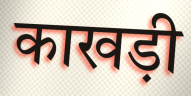
काखड़ी